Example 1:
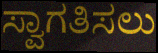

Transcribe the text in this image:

ಸ್ವಾಗತಿಸಲು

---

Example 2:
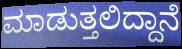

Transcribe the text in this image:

ಮಾಡುತ್ತಲಿದ್ದಾನೆ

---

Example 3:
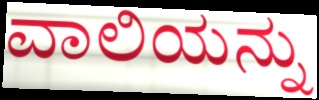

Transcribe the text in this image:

ವಾಲಿಯನ್ನು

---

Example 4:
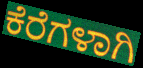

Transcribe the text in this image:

ಕೆರೆಗಳಾಗಿ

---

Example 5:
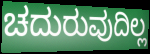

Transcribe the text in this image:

ಚದುರುವುದಿಲ್ಲ